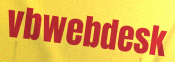
vbwebdesk